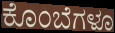
ಕೊಂಬೆಗಳೂ